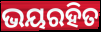
ଭୟରହିତ